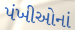
પંખીઓનાં